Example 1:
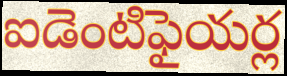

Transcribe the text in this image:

ఐడెంటిఫైయర్ల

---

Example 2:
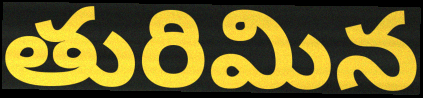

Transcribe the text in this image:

తురిమిన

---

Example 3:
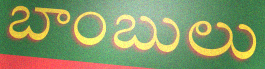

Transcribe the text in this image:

బాంబులు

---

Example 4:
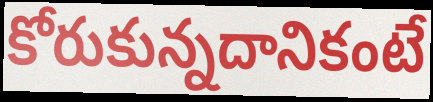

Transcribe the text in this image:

కోరుకున్నదానికంటే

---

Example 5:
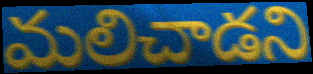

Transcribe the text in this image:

మలిచాడని